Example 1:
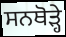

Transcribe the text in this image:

ਸਨਥੋੜ੍ਹੇ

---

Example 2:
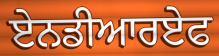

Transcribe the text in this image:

ਏਨਡੀਆਰਏਫ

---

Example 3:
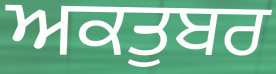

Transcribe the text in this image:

ਅਕਤੁਬਰ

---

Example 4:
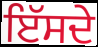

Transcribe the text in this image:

ਇੱਸਦੇ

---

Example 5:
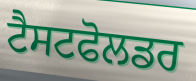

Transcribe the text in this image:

ਟੈਸਟਫੋਲਡਰ